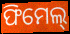
ଫିମେଲ୍